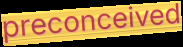
preconceived